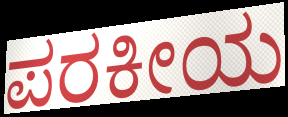
ಪರಕೀಯ